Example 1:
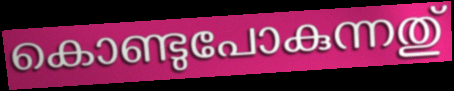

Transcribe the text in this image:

കൊണ്ടുപോകുന്നതു്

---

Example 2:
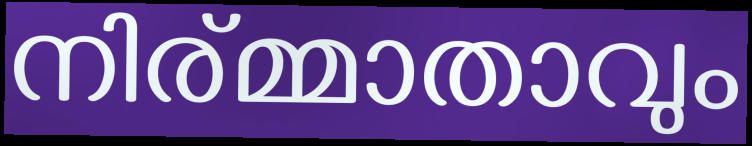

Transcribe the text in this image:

നിര്മ്മാതാവും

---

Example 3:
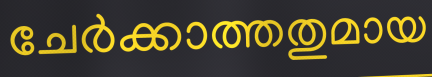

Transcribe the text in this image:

ചേർക്കാത്തതുമായ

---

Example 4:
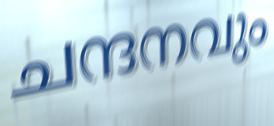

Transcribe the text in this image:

ചന്ദനവും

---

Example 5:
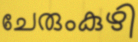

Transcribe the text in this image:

ചേരുംകുഴി